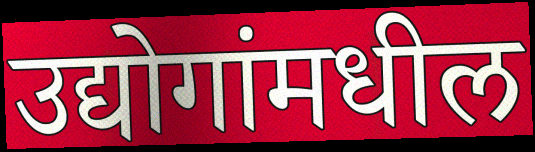
उद्योगांमधील